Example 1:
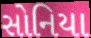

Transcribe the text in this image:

સોનિયા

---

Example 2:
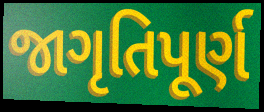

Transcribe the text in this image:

જાગૃતિપૂર્ણ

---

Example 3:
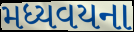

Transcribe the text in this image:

મધ્યવયના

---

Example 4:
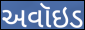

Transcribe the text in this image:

અવૉઇડ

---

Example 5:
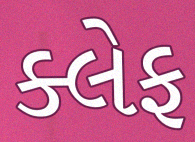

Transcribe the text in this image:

ક્લેફ